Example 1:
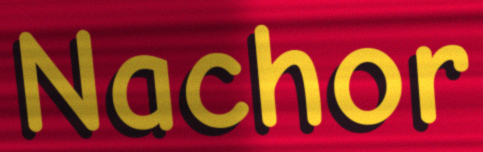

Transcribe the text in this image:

Nachor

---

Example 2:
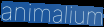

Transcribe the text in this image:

animalium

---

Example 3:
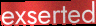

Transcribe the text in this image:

exserted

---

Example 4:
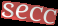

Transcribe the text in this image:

secc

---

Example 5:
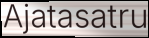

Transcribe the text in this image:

Ajatasatru